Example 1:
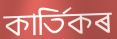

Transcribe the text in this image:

কাৰ্তিকৰ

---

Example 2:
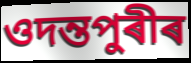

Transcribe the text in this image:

ওদন্তপুৰীৰ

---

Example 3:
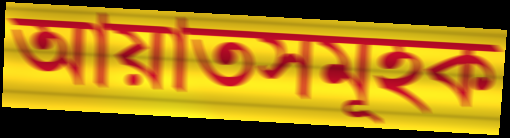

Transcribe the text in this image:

আয়াতসমূহক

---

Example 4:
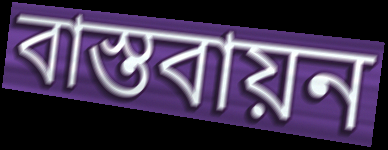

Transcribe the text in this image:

বাস্তবায়ন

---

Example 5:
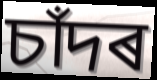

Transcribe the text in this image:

চাঁদৰ